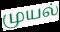
முயல்